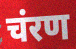
चंरण